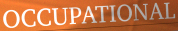
OCCUPATIONAL